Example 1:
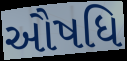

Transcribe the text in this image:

ઔષધિ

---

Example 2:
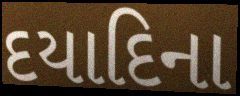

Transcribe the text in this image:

દયાદિના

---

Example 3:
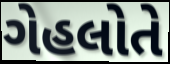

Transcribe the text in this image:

ગેહલોતે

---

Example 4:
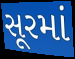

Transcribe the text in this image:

સૂરમાં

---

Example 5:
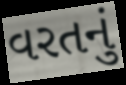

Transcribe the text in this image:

વરતનું